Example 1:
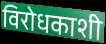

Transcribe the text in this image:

विरोधकाशी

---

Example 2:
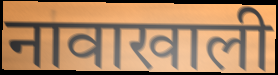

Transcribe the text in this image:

नावाखाली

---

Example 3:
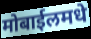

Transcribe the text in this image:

मोबाईलमधे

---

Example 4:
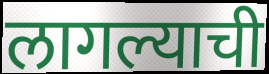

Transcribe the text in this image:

लागल्याची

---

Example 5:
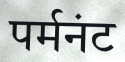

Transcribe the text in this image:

पर्मनंट